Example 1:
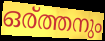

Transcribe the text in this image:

ഒര്ത്തനും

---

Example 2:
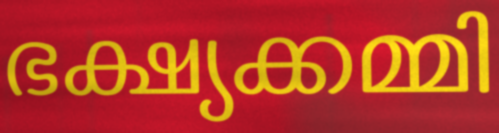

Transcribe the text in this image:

ഭക്ഷ്യക്കമ്മി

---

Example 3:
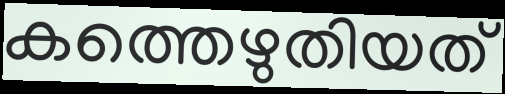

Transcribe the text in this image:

കത്തെഴുതിയത്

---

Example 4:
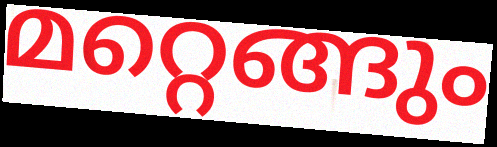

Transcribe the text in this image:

മറ്റെങ്ങും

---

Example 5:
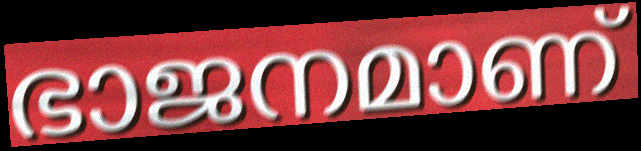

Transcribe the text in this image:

ഭാജനമാണ്